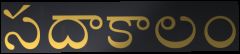
సదాకాలం